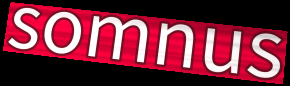
somnus